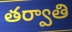
తర్వాతి